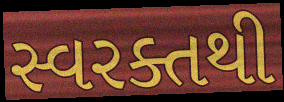
સ્વરક્તથી